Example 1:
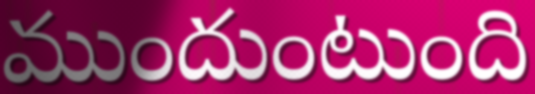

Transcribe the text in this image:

ముందుంటుంది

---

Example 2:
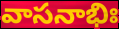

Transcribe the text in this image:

వాసనాభిః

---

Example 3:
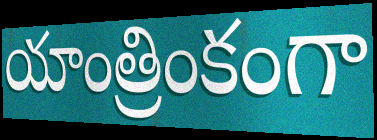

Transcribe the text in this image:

యాంత్రింకంగా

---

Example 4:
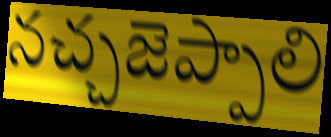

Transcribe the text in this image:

నచ్చజెప్పాలి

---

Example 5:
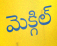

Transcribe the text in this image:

మెక్గిల్